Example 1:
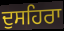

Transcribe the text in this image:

ਦੁਸਹਿਰਾ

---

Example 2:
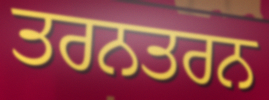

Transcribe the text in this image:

ਤਰਨਤਰਨ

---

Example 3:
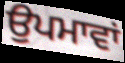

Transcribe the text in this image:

ਉਪਮਾਵਾਂ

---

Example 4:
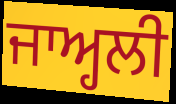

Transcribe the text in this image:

ਜਾਅ੍ਹਲੀ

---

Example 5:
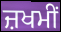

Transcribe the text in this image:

ਜ਼ਖਮੀਂ